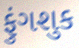
ફુંગશુક